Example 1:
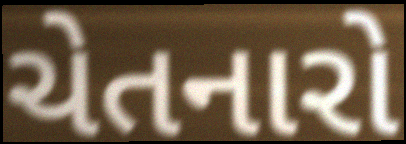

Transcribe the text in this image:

ચેતનારો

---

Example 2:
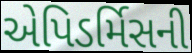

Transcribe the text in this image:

એપિડર્મિસની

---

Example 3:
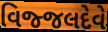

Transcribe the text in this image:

વિજ્જલદેવે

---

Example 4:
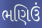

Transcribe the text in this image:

ભણિઉં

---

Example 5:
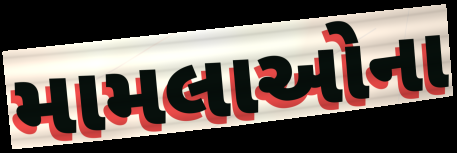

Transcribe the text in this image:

મામલાઓના